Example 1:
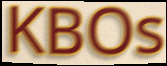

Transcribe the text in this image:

KBOs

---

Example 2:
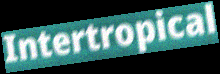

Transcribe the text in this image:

Intertropical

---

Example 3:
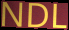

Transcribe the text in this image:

NDL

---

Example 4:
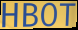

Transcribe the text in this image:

HBOT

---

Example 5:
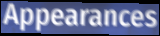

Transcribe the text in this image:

Appearances